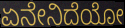
ಏನೇನಿದೆಯೋ